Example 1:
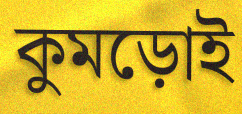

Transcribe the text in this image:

কুমড়োই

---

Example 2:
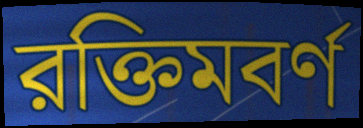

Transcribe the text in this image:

রক্তিমবর্ণ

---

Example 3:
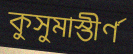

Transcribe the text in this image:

কুসুমাস্তীর্ণ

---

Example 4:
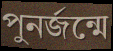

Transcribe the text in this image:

পুনর্জন্মে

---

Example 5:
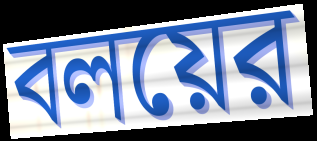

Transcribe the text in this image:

বলয়ের